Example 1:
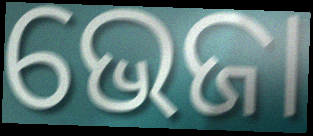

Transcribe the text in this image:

ଭେଜା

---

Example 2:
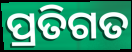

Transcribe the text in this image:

ପ୍ରତିଗତ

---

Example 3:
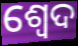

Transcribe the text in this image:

ଶ୍ଵେଦ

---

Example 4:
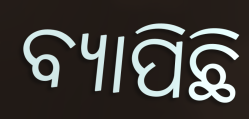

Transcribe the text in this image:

ବ୍ୟାପିଛି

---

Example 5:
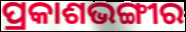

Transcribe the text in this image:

ପ୍ରକାଶଭଙ୍ଗୀର